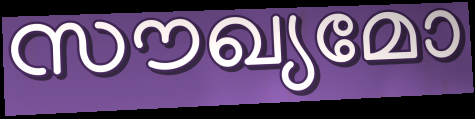
സൗഖ്യമോ